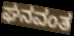
ಘನವಂತ